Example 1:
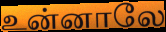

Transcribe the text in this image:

உன்னாலே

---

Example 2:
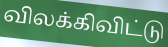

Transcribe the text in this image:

விலக்கிவிட்டு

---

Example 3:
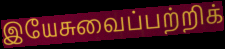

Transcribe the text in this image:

இயேசுவைப்பற்றிக்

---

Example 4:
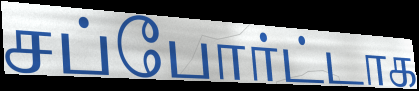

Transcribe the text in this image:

சப்போர்ட்டாக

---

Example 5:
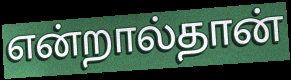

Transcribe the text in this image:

என்றால்தான்